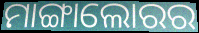
ମାଙ୍ଗାଲୋରର